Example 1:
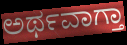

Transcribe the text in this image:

ಅರ್ಥವಾಗ್ತಾ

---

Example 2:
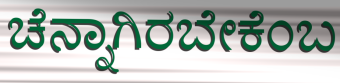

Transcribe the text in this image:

ಚೆನ್ನಾಗಿರಬೇಕೆಂಬ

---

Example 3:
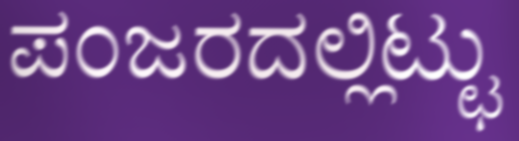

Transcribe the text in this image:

ಪಂಜರದಲ್ಲಿಟ್ಟು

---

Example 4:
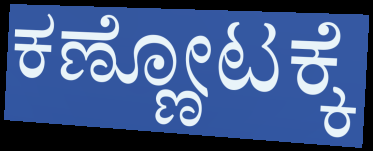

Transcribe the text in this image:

ಕಣ್ಣೋಟಕ್ಕೆ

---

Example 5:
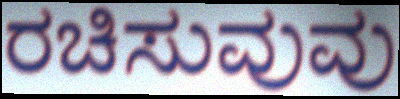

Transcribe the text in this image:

ರಚಿಸುವುವು